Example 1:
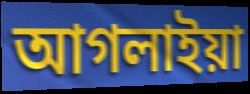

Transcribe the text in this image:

আগলাইয়া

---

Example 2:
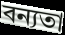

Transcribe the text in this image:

বন্যতা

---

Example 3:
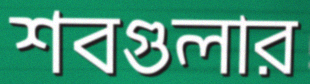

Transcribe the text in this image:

শবগুলার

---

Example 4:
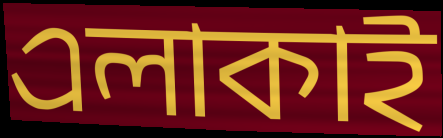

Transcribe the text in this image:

এলাকাই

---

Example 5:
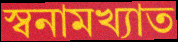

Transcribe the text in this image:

স্বনামখ্যাত